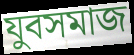
যুবসমাজ